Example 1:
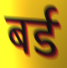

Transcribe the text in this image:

बर्ड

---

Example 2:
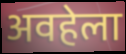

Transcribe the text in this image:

अवहेला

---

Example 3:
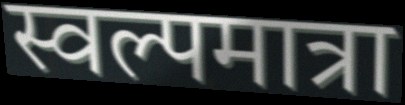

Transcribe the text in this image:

स्वल्पमात्रा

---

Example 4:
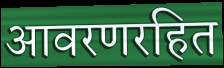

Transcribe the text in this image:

आवरणरहित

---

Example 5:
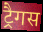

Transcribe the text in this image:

ट्रैगस